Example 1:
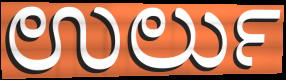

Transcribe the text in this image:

ಉರ್ಲು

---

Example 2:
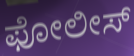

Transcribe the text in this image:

ಫೋಲೀಸ್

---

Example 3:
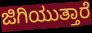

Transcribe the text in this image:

ಜಿಗಿಯುತ್ತಾರೆ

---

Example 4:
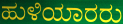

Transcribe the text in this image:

ಹುಳಿಯಾರರು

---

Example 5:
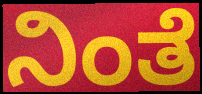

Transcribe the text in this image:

ನಿಂತೆ